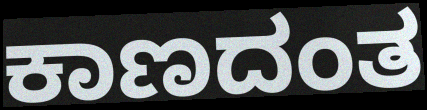
ಕಾಣದಂತ